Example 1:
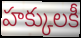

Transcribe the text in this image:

హక్కులకీ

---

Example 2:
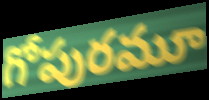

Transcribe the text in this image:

గోపురమూ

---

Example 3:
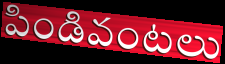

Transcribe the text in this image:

పిండివంటలు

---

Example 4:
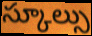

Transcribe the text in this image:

స్కూల్సు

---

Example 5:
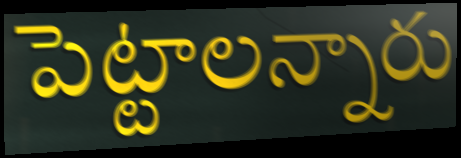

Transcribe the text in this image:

పెట్టాలన్నారు